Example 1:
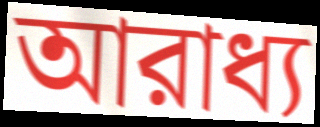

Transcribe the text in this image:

আরাধ্য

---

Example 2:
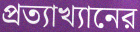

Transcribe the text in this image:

প্রত্যাখ্যানের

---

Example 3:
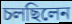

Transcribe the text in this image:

চলছিলেন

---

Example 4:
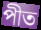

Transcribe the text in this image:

পীত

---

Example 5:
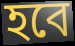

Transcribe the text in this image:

হবে